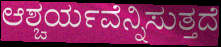
ಆಶ್ಚರ್ಯವೆನ್ನಿಸುತ್ತದೆ